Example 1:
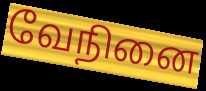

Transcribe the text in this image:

வேநினை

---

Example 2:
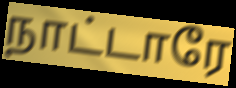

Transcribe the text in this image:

நாட்டாரே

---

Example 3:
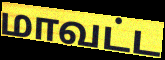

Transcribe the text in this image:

மாவட்ட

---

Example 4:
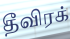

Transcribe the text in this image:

தீவிரக்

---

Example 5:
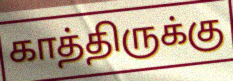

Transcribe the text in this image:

காத்திருக்கு